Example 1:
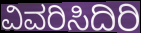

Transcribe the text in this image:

ವಿವರಿಸಿದಿರಿ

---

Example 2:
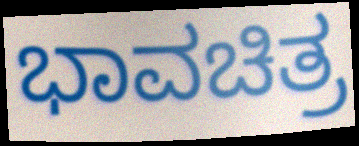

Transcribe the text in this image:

ಭಾವಚಿತ್ರ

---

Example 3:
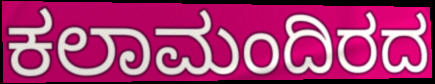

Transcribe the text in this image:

ಕಲಾಮಂದಿರದ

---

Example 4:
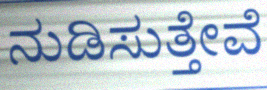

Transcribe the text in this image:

ನುಡಿಸುತ್ತೇವೆ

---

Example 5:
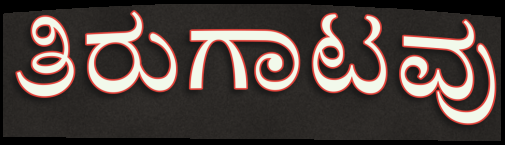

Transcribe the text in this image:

ತಿರುಗಾಟವು